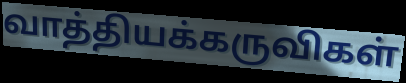
வாத்தியக்கருவிகள்